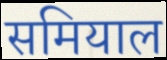
समियाल